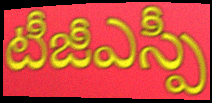
టీజీఎస్పీ